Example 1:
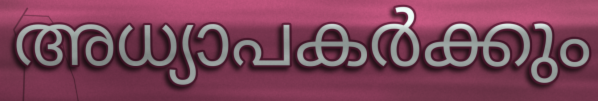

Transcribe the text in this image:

അധ്യാപകർക്കും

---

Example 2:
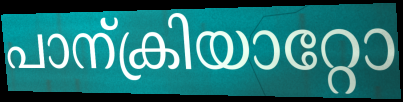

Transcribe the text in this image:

പാന്ക്രിയാറ്റോ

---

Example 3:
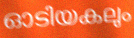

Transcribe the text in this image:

ഓടിയകലും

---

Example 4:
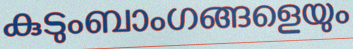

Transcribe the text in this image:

കുടുംബാംഗങ്ങളെയും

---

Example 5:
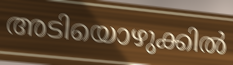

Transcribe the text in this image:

അടിയൊഴുക്കിൽ